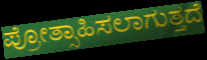
ಪ್ರೋತ್ಸಾಹಿಸಲಾಗುತ್ತದೆ